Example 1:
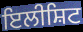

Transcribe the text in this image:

ਇਲੀਸ਼ਿਟ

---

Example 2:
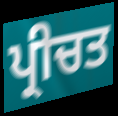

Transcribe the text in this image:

ਪ੍ਰੀਚਤ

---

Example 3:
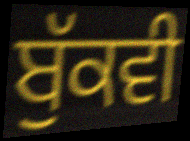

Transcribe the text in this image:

ਬੁੱਕਵੀ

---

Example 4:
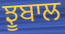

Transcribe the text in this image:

ਝੂਬਾਲ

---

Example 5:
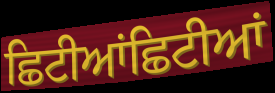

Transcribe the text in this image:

ਛਿਟੀਆਂਛਿਟੀਆਂ